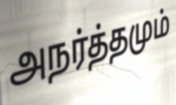
அநர்த்தமும்